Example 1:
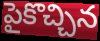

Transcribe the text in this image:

పైకొచ్చిన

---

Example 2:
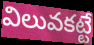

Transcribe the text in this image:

విలువకట్టే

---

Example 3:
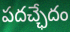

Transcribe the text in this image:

పదచ్ఛేదం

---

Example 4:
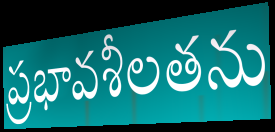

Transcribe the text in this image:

ప్రభావశీలతను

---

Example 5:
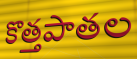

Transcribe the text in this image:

కొత్తపాతల